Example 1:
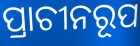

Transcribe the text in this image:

ପ୍ରାଚୀନରୂପ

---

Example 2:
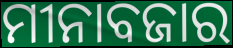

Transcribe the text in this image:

ମୀନାବଜାର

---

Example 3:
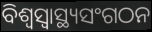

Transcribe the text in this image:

ବିଶ୍ଵସ୍ଵାସ୍ଥ୍ୟସଂଗଠନ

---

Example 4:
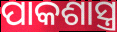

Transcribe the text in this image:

ପାକଶାସ୍ତ୍ର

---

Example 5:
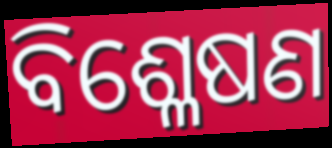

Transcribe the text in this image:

ବିଶ୍ଳେଷଣ